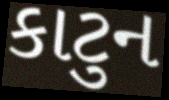
કાટુન